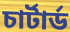
চার্টার্ড